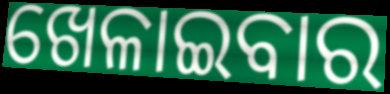
ଖେଳାଇବାର